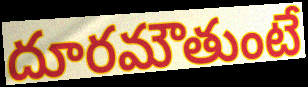
దూరమౌతుంటే